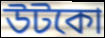
উটকো